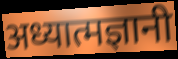
अध्यात्मज्ञानी